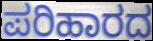
ಪರಿಹಾರದ